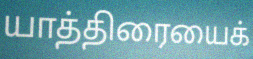
யாத்திரையைக்